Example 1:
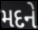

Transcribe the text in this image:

મદને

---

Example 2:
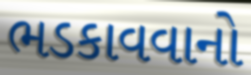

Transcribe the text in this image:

ભડકાવવાનો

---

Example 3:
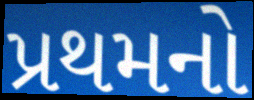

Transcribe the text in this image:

પ્રથમનો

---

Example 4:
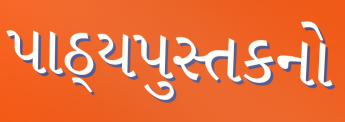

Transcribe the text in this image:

પાઠ્યપુસ્તકનો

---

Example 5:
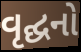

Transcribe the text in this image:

વૃદ્ઘનો